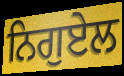
ਨਿਗੁਏਲ